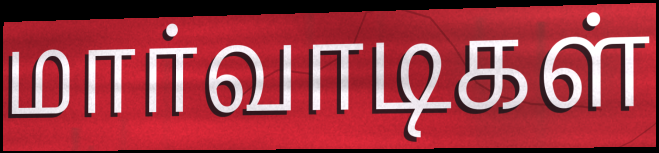
மார்வாடிகள்